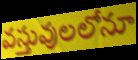
వస్తువులలోనూ